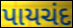
પાયચંદ